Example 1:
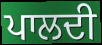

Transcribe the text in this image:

ਪਾਲਦੀ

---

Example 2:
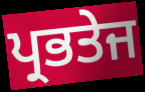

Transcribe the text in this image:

ਪ੍ਰਭਤੇਜ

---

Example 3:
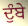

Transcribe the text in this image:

ਦੁੰਬੇ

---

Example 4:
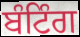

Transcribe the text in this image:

ਬੰਟਿੰਗ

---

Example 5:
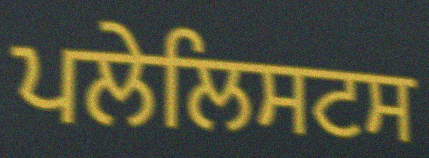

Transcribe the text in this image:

ਪਲੇਲਿਸਟਸ